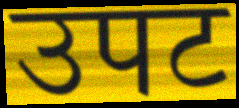
उपट